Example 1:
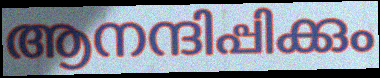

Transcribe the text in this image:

ആനന്ദിപ്പിക്കും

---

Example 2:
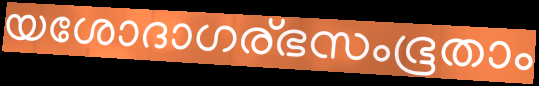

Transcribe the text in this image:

യശോദാഗര്ഭസംഭൂതാം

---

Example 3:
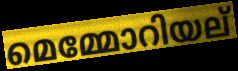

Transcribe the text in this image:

മെമ്മോറിയല്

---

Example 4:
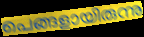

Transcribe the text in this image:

പെങ്ങളായിരുന്നു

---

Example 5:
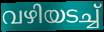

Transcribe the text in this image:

വഴിയടച്ച്